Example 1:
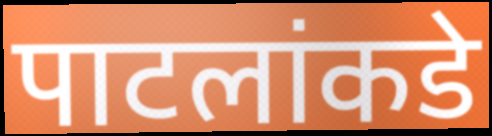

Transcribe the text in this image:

पाटलांकडे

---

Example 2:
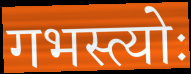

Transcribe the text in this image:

गभस्त्योः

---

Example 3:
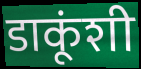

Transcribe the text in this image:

डाकूंशी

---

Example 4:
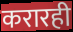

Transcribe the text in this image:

करारही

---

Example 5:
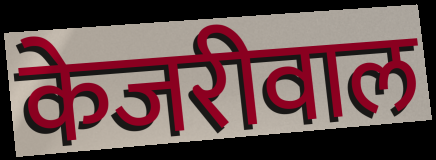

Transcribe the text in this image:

केजरीवाल